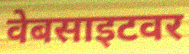
वेबसाइटवर